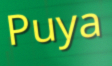
Puya